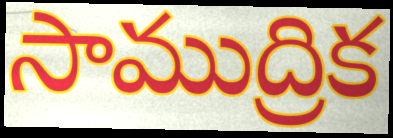
సాముద్రిక